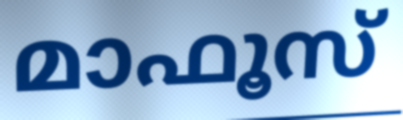
മാഫൂസ്